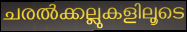
ചരൽക്കല്ലുകളിലൂടെ